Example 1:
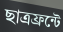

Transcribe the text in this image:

ছাত্রফ্রন্টে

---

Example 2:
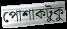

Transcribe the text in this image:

পোশাকটুকু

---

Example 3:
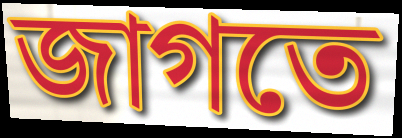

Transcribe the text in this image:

জাগতে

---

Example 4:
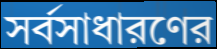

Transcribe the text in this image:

সর্বসাধারণের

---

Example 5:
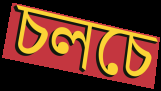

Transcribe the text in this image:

চলচে